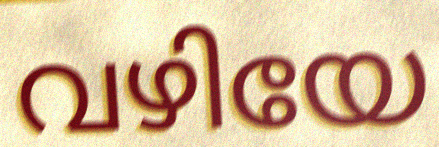
വഴിയേ